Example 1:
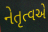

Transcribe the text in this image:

નેતૃત્વએ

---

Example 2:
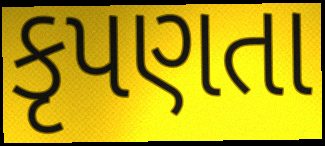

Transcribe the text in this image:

કૃપણતા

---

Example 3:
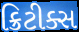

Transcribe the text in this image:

ક્રિટીક્સ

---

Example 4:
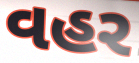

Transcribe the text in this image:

વહર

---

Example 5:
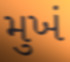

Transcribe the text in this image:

મુખં